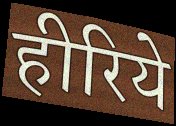
हीरिये